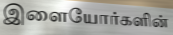
இளையோர்களின்